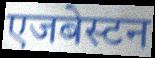
एजबेस्‍टन